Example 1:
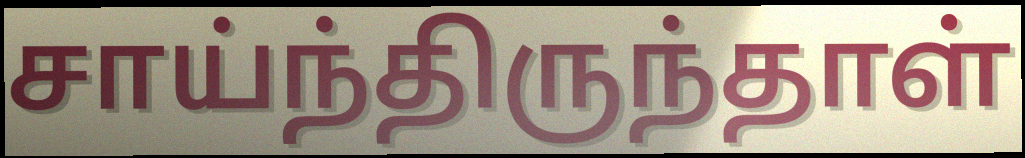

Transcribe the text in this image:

சாய்ந்திருந்தாள்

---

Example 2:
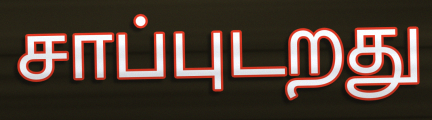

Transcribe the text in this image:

சாப்புடறது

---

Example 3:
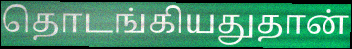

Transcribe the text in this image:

தொடங்கியதுதான்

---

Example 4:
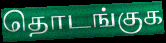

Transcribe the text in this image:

தொடங்குக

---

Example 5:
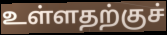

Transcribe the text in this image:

உள்ளதற்குச்